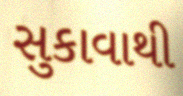
સુકાવાથી